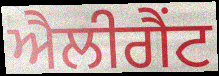
ਐਲੀਗੈਂਟ